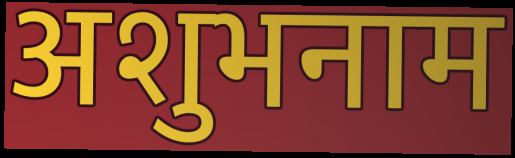
अशुभनाम